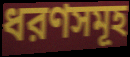
ধরণসমূহ